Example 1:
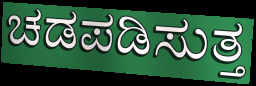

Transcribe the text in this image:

ಚಡಪಡಿಸುತ್ತ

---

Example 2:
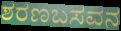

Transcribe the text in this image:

ಶರಣಬಸವನ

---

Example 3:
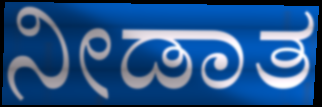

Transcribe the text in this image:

ನೀಡಾತ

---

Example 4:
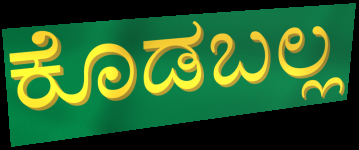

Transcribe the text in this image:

ಕೊಡಬಲ್ಲ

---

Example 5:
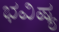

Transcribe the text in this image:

ಭವಿಷ್ಯ